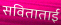
सविताताई